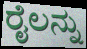
ರೈಲನ್ನು